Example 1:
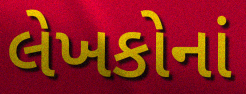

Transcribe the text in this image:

લેખકોનાં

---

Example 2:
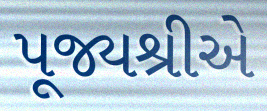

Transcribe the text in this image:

પૂજ્યશ્રીએ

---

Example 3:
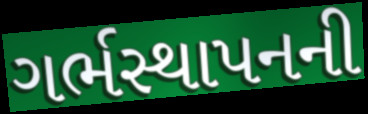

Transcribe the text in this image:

ગર્ભસ્થાપનની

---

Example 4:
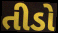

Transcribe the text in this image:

તીડો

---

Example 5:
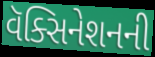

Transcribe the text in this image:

વૅક્સિનેશનની